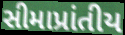
સીમાપ્રાંતીય